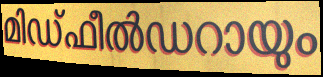
മിഡ്ഫീൽഡറായും